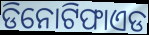
ଡିନୋଟିଫାଏଡ